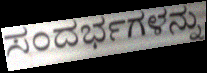
ಸಂದರ್ಭಗಳನ್ನು